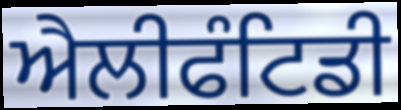
ਐਲੀਫੰਟਿਡੀ